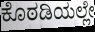
ಕೊಠಡಿಯಲ್ಲೇ